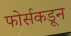
फोर्सकडून